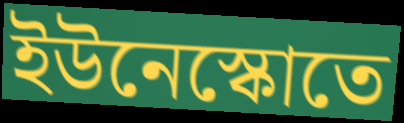
ইউনেস্কোতে